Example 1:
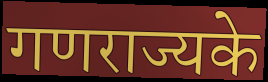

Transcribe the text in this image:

गणराज्यके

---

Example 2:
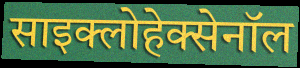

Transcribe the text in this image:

साइक्लोहेक्सेनॉल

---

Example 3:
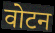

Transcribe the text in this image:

वोटन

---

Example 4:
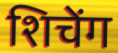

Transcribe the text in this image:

शिचेंग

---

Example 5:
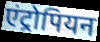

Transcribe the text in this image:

एंट्रोपियन